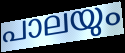
പാലയും